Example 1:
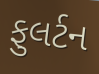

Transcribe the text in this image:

ફુલર્ટન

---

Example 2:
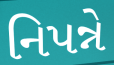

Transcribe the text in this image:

નિપન્ને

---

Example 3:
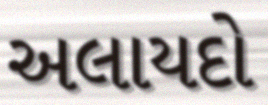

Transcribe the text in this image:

અલાયદો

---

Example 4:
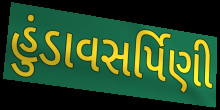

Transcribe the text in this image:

હુંડાવસર્પિણી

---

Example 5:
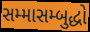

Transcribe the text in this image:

સમ્માસમ્બુદ્ધો